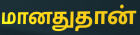
மானதுதான்